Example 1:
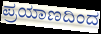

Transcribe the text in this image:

ಪ್ರಯಾಣದಿಂದ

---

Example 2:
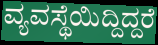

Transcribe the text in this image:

ವ್ಯವಸ್ಥೆಯಿದ್ದಿದ್ದರೆ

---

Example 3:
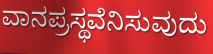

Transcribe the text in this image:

ವಾನಪ್ರಸ್ಥವೆನಿಸುವುದು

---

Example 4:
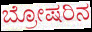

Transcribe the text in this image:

ಬ್ರೋಷರಿನ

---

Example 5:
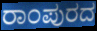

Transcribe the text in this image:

ರಾಂಪುರದ